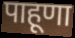
पाहूणा